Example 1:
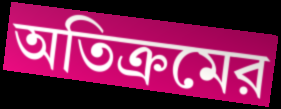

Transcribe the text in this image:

অতিক্রমের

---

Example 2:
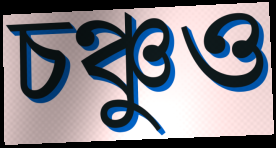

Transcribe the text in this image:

চঞ্চুও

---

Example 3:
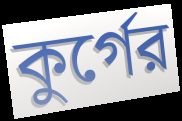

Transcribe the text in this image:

কুর্গের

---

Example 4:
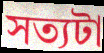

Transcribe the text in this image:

সত্যটা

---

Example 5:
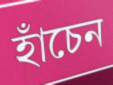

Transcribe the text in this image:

হাঁচেন